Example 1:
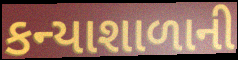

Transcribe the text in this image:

કન્યાશાળાની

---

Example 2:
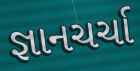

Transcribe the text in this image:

જ્ઞાનચર્ચા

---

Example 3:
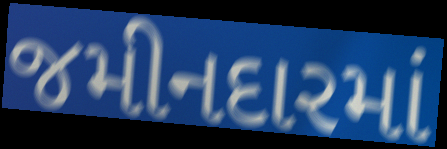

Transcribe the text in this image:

જમીનદારમાં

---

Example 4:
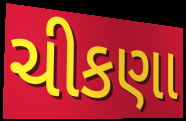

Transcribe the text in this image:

ચીકણા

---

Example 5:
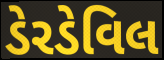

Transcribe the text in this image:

ડેરડેવિલ